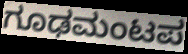
ಗೂಢಮಂಟಪ